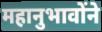
महानुभावोंने